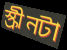
স্ক্রীনটা